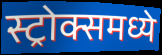
स्ट्रोक्समध्ये